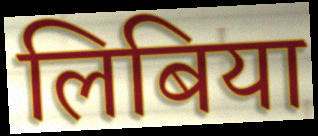
लिबिया